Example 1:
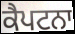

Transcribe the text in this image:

ਕੈਪਟਨਾ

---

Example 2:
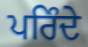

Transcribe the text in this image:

ਪਰਿੰਦੇ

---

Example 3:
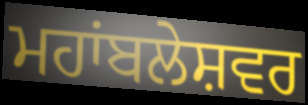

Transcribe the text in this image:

ਮਹਾਂਬਲੇਸ਼ਵਰ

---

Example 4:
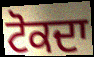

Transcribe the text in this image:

ਟੋਕਦਾ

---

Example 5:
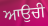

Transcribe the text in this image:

ਆਉਚੀ